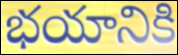
భయానికి